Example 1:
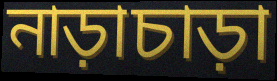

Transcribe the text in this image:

নাড়াচাড়া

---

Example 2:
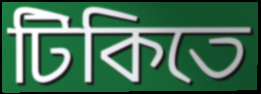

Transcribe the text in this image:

টিকিতে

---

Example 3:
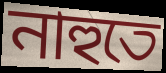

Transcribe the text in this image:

নাহুতে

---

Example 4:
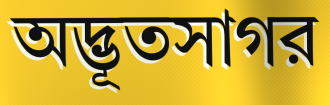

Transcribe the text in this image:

অদ্ভূতসাগর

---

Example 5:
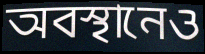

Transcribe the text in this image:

অবস্থানেও